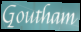
Goutham